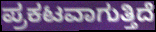
ಪ್ರಕಟವಾಗುತ್ತಿದೆ